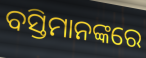
ବସ୍ତିମାନଙ୍କରେ